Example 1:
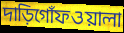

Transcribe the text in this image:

দাড়িগোঁফওয়ালা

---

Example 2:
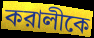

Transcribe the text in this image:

করালীকে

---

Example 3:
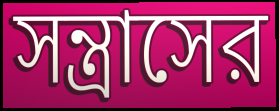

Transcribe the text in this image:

সন্ত্রাসের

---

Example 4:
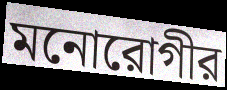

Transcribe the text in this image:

মনোরোগীর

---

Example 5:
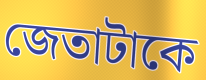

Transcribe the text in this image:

জেতাটাকে